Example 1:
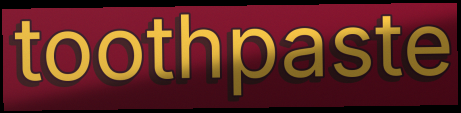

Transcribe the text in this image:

toothpaste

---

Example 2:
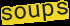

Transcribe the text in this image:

soups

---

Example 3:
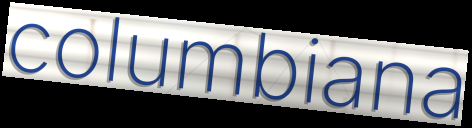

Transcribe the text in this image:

columbiana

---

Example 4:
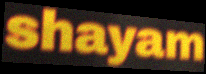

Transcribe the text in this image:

shayam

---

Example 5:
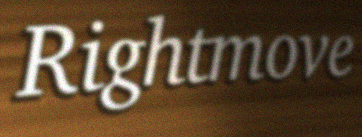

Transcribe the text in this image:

Rightmove